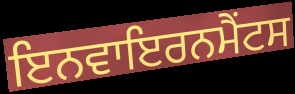
ਇਨਵਾਇਰਨਮੈਂਟਸ